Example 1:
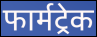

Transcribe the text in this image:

फार्मट्रेक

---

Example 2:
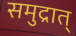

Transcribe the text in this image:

समुद्रात्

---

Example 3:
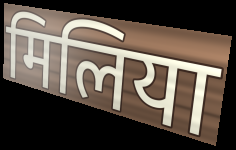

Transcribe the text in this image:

मिलिया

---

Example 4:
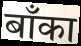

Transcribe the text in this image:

बाँका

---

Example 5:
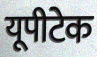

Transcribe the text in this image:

यूपीटेक